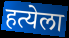
हत्येला